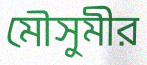
মৌসুমীর